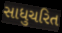
સાધુચરિત